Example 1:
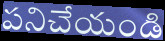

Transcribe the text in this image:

పనిచేయండి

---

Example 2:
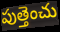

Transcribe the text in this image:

పుత్తెంచు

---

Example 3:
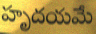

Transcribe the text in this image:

హృదయమే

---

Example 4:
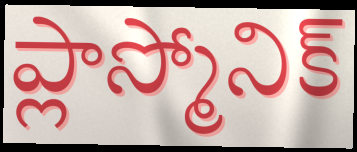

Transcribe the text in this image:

ప్లాస్మోనిక్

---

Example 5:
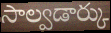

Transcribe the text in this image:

సాల్వడార్కు